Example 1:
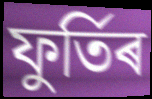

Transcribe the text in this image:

ফুৰ্তিৰ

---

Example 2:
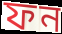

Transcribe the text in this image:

ফন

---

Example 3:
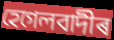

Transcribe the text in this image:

হেগেলবাদীৰ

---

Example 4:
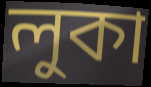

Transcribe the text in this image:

লুকা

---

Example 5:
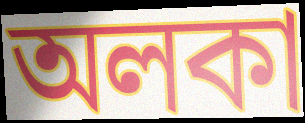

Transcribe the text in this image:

অলকা